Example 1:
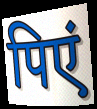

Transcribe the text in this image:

पिएं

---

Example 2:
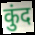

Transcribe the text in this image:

कुंद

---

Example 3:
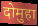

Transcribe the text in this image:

दोमुहा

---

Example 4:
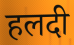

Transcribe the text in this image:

हलदी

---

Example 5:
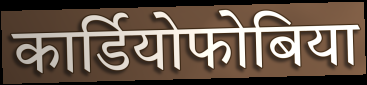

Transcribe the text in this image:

कार्डियोफोबिया